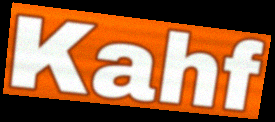
Kahf